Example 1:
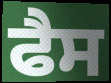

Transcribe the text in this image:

ਫੈਸ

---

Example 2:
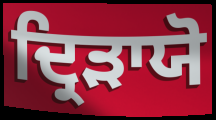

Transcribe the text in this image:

ਦ੍ਰਿੜਾਯੋ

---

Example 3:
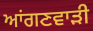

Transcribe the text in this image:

ਆਂਗਣਵਾੜੀ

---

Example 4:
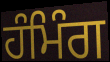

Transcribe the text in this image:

ਹੰਮਿੰਗ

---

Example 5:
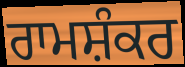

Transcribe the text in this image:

ਰਾਮਸ਼ੰਕਰ